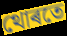
থোৰতে